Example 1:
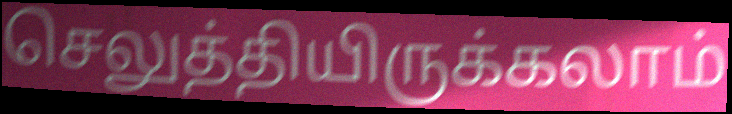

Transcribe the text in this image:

செலுத்தியிருக்கலாம்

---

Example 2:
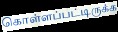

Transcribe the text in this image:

கொள்ளப்பட்டிருக்க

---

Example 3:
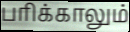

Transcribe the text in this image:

பரிக்காலும்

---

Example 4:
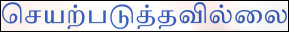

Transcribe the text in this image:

செயற்படுத்தவில்லை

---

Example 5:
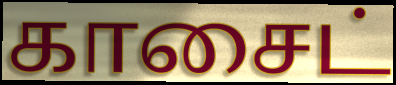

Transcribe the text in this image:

காசைட்